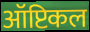
ऑप्टिकल